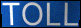
TOLL